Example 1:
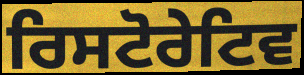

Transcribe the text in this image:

ਰਿਸਟੋਰੇਟਿਵ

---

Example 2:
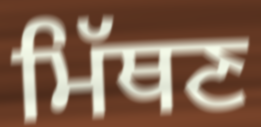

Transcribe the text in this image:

ਮਿੱਥਣ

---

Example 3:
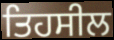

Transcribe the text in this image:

ਤਿਹਸੀਲ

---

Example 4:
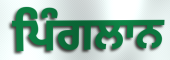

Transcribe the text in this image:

ਪਿੰਗਲਾਨ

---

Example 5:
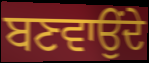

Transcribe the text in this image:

ਬਣਵਾਉਂਦੇ